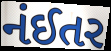
નંઈતર